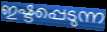
ഇഷ്ടപ്പെടുന്ന